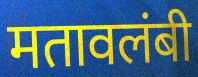
मतावलंबी